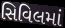
સિવિલમાં